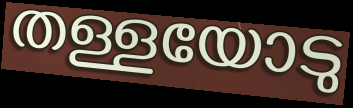
തള്ളയോടു